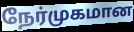
நேர்முகமான